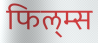
फिल्म्स